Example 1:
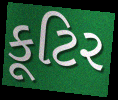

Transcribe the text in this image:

કૂટિર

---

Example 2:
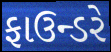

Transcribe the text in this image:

ફાઉન્ડરે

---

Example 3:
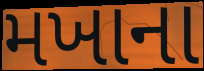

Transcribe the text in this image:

મખાના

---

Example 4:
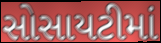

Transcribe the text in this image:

સોસાયટીમાં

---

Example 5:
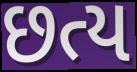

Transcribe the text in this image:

છત્ય